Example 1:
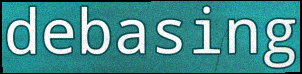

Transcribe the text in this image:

debasing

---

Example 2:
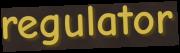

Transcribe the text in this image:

regulator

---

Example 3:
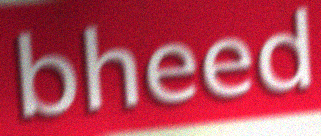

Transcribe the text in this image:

bheed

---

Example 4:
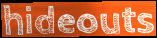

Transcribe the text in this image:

hideouts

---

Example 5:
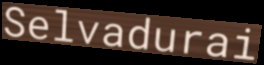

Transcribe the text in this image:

Selvadurai